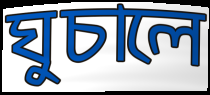
ঘুচালে